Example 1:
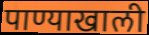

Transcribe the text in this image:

पाण्याखाली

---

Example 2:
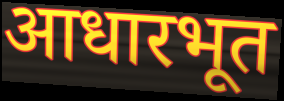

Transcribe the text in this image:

आधारभूत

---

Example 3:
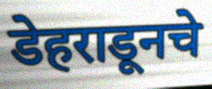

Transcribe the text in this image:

डेहराडूनचे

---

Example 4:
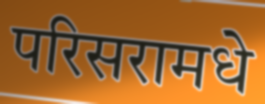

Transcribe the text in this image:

परिसरामधे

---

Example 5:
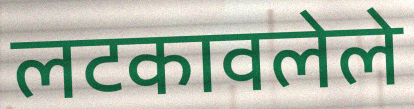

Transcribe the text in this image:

लटकावलेले